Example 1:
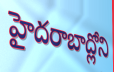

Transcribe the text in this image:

హైదరాబాద్లోని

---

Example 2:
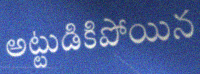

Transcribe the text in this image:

అట్టుడికిపోయిన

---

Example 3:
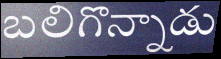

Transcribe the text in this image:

బలిగొన్నాడు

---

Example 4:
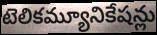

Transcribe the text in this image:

టెలికమ్యూనికేషన్లు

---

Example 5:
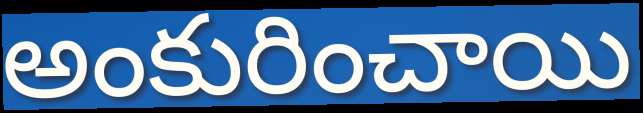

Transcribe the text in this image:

అంకురించాయి